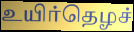
உயிர்தெழச்